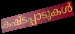
കഷ്ടപ്പാടുകൾ